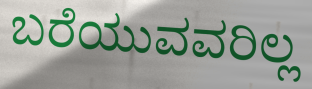
ಬರೆಯುವವರಿಲ್ಲ